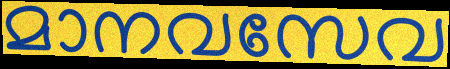
മാനവസേവ